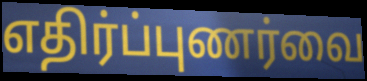
எதிர்ப்புணர்வை